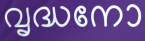
വൃദ്ധനോ